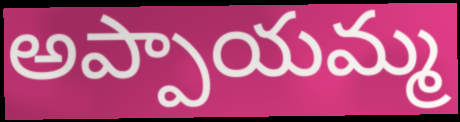
అప్పాయమ్మ